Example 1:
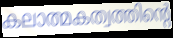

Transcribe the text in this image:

കലാത്മകത്വത്തിന്റെ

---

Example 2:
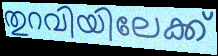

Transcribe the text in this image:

തുറവിയിലേക്ക്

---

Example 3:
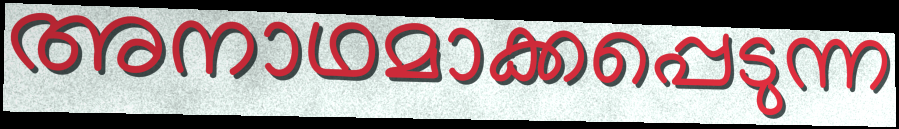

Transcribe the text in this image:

അനാഥമാക്കപ്പെടുന്ന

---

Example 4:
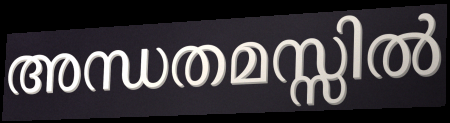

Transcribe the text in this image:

അന്ധതമസ്സിൽ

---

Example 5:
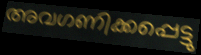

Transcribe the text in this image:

അവഗണിക്കപ്പെട്ടു